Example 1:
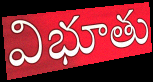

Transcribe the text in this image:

విభూతు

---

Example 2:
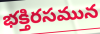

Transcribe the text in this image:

భక్తిరసమున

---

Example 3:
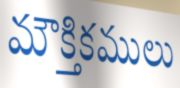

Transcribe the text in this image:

మౌక్తికములు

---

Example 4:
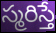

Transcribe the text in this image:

స్మరిస్తే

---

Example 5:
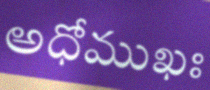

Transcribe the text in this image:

అధోముఖః